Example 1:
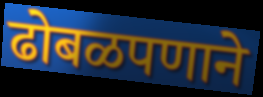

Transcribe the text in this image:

ढोबळपणाने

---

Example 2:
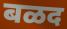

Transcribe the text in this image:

बळद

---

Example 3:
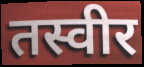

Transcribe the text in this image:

तस्वीर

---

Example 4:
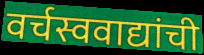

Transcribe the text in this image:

वर्चस्ववाद्यांची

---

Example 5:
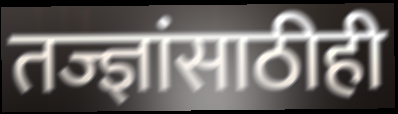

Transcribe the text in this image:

तज्ज्ञांसाठीही